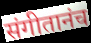
संगीतानंच